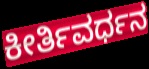
ಕೀರ್ತಿವರ್ಧನ